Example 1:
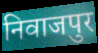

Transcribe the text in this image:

निवाजपुर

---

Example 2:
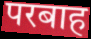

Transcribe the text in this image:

परबाह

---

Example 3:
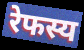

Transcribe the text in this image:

रेफस्य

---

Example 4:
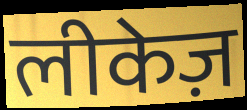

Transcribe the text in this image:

लीकेज़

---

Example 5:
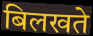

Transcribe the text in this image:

बिलखते